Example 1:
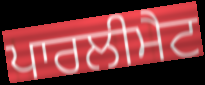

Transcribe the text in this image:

ਪਾਰਲੀਮੈਟ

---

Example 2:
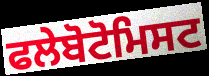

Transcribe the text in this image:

ਫਲੇਬੋਟੋਮਿਸਟ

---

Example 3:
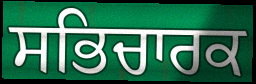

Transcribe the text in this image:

ਸਭਿਚਾਰਕ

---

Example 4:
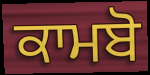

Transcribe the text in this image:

ਕਾਮਬੋ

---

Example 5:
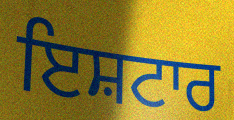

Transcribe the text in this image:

ਇਸ਼ਟਾਰ